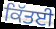
ਕਿੱਤਈ